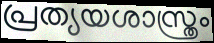
പ്രത്യയശാസ്ത്രം